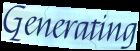
Generating